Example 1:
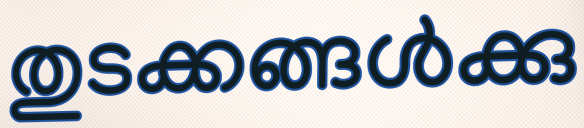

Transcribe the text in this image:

തുടക്കങ്ങൾക്കു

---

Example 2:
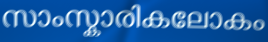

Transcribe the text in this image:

സാംസ്കാരികലോകം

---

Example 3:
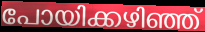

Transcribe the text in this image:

പോയിക്കഴിഞ്ഞ്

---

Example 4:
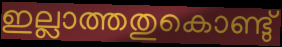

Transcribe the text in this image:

ഇല്ലാത്തതുകൊണ്ടു്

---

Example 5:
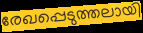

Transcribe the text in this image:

രേഖപ്പെടുത്തലായി